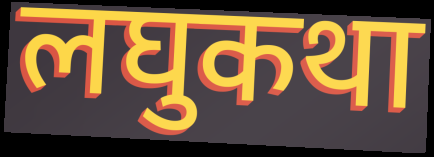
लघुकथा